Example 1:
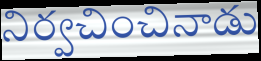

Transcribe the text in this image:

నిర్వచించినాడు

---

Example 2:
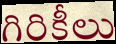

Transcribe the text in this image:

గిరికీలు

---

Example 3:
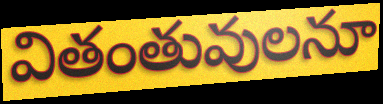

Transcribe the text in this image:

వితంతువులనూ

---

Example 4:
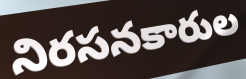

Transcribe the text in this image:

నిరసనకారుల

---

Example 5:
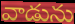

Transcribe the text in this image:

వాడును